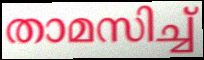
താമസിച്ച്